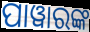
ପାୱାରଙ୍କ